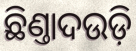
ଛିଣ୍ତାଦଉଡ଼ି